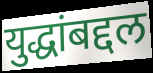
युद्धांबद्दल